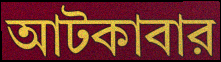
আটকাবার